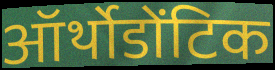
ऑर्थोडोंटिक